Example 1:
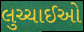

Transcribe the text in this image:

લુચ્ચાઈઓ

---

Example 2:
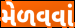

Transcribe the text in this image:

મેળવવાં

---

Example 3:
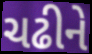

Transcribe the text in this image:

ચઢીને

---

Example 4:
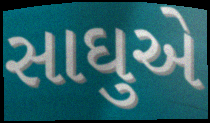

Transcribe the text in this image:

સાઘુએ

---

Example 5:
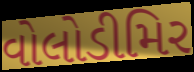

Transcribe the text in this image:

વોલોડીમિર